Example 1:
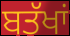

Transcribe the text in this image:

ਬਤੱਖਾਂ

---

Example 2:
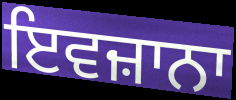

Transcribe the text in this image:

ਇਵਜ਼ਾਨਾ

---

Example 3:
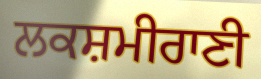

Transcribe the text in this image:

ਲਕਸ਼ਮੀਰਾਣੀ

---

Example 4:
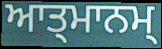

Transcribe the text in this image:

ਆਤ੍ਮਾਨਮ੍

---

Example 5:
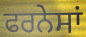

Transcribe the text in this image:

ਫਰਨੇਸਾਂ